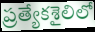
ప్రత్యేకశైలిలో